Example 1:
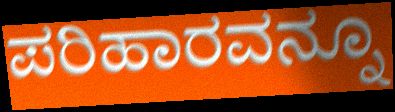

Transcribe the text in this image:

ಪರಿಹಾರವನ್ನೂ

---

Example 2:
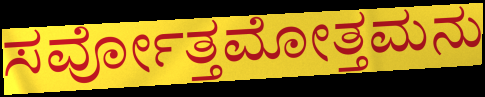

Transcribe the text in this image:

ಸರ್ವೋತ್ತಮೋತ್ತಮನು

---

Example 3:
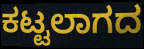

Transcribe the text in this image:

ಕಟ್ಟಲಾಗದ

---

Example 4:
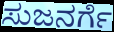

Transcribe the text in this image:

ಸುಜನರ್ಗೆ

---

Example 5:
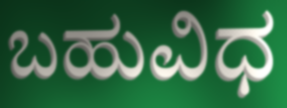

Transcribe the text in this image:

ಬಹುವಿಧ